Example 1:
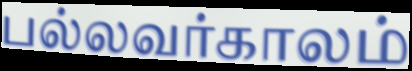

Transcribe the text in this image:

பல்லவர்காலம்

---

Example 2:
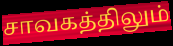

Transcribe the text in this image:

சாவகத்திலும்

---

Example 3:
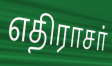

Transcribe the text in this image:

எதிராசர்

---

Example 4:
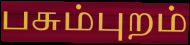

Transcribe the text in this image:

பசும்புறம்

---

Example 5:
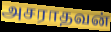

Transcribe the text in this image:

அசராதவன்